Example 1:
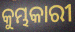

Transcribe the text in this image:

କୁମ୍ଭକାରୀ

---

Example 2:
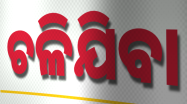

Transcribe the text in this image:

ଚଳିଯିବା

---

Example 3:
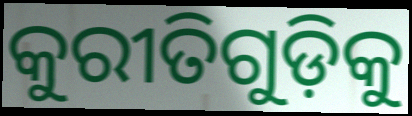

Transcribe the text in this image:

କୁରୀତିଗୁଡ଼ିକୁ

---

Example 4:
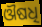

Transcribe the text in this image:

ଔଷଧି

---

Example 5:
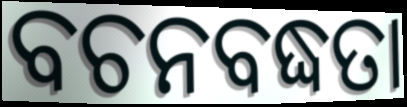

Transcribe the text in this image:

ବଚନବଦ୍ଧତା